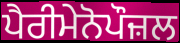
ਪੈਰੀਮੇਨੋਪੌਜ਼ਲ